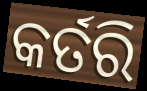
କର୍ତରି